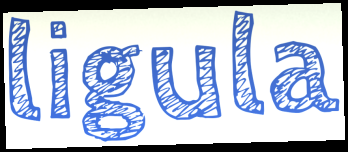
ligula